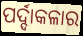
ପର୍ଦ୍ଦାକଳାର